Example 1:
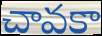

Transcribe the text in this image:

చావకా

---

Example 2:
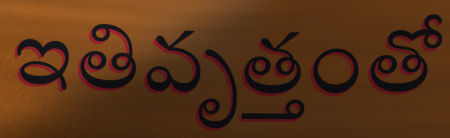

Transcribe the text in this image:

ఇతివృత్తంతో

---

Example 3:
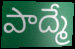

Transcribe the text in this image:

పాద్మే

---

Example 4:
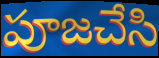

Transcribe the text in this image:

పూజచేసి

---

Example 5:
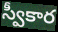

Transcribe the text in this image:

స్వీకార